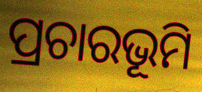
ପ୍ରଚାରଭୂମି